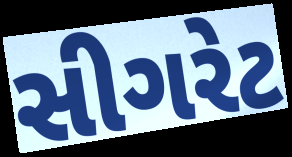
સીગરેટ